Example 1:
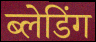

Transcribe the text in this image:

ब्लेडिंग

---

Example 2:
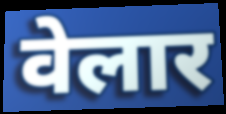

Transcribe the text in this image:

वेलार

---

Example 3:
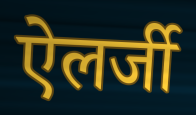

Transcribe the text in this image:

ऐलर्जी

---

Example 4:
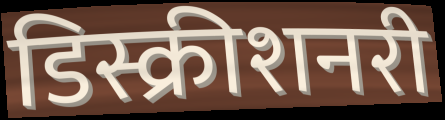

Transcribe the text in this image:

डिस्क्रीशनरी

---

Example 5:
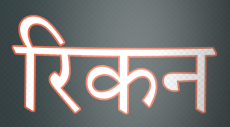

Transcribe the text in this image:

रिकन